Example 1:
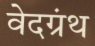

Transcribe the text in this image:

वेदग्रंथ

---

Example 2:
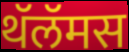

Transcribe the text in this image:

थॅलॅमस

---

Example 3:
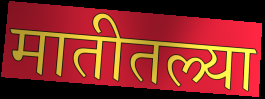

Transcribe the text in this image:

मातीतल्या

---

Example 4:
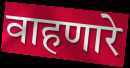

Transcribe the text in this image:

वाहणारे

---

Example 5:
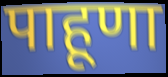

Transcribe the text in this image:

पाहूणा